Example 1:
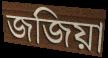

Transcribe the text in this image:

জজিয়া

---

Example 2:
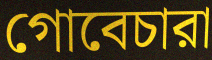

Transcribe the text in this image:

গোবেচারা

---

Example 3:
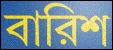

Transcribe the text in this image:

বারিশ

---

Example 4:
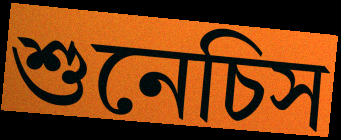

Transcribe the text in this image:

শুনেচিস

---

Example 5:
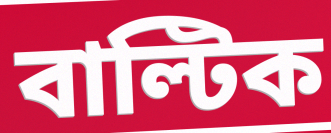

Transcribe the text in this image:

বাল্টিক